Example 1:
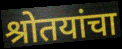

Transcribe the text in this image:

श्रोतयांचा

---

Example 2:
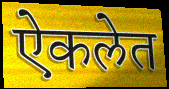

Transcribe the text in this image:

ऐकलेत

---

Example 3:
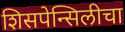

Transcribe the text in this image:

शिसपेन्सिलीचा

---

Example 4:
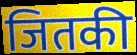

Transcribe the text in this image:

जितकी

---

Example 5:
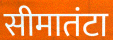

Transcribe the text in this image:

सीमातंटा